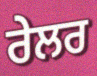
ਰੇਲਰ